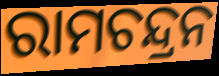
ରାମଚନ୍ଦ୍ରନ